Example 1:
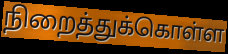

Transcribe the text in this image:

நிறைத்துக்கொள்ள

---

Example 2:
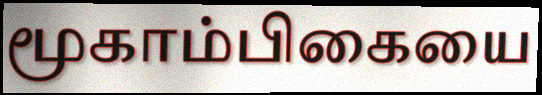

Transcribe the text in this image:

மூகாம்பிகையை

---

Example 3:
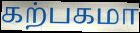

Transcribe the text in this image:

கற்பகமா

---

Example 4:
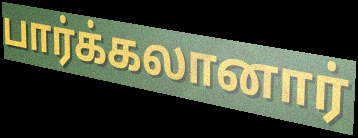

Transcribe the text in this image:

பார்க்கலானார்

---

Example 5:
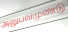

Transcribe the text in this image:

அனுபவமுண்டு